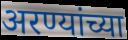
अरण्यांच्या